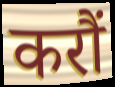
करौं